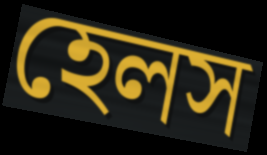
হেলস